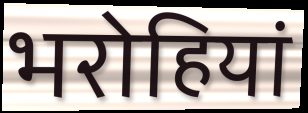
भरोहियां